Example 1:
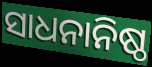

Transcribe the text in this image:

ସାଧନାନିଷ୍ଠ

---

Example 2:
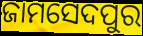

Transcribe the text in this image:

ଜାମସେଦପୁର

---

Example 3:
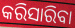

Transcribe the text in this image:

କରିସାରିବା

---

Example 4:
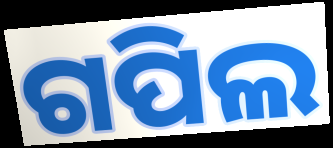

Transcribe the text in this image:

ଗପିଲ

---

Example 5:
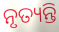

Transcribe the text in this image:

ନୃତ୍ୟନ୍ତି